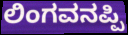
ಲಿಂಗವನಪ್ಪಿ